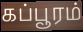
கப்பூரம்